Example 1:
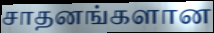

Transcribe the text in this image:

சாதனங்களான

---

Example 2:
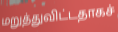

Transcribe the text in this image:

மறுத்துவிட்டதாகச்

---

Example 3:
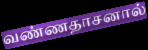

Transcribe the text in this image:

வண்ணதாசனால்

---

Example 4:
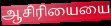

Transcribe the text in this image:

ஆசிரியையை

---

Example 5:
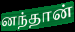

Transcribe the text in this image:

னந்தான்